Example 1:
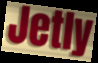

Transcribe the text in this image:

Jetly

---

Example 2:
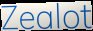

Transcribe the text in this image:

Zealot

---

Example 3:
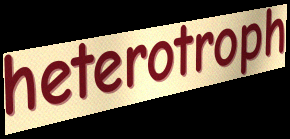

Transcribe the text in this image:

heterotroph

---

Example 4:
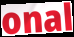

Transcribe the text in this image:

onal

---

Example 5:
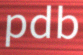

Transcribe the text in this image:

pdb